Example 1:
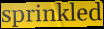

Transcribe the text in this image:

sprinkled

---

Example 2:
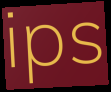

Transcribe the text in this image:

ips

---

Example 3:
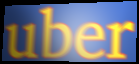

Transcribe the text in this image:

uber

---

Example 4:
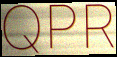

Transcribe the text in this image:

QPR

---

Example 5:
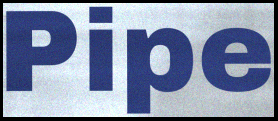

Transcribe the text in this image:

Pipe